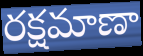
రక్షమాణా